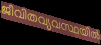
ജീവിതവ്യവസ്ഥയിൽ